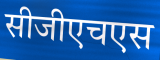
सीजीएचएस